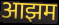
आझम